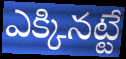
ఎక్కినట్టే